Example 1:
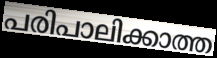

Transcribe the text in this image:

പരിപാലിക്കാത്ത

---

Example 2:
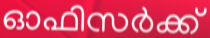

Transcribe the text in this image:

ഓഫിസർക്ക്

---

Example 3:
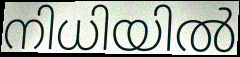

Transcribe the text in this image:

നിധിയിൽ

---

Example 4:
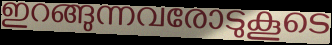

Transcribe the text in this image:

ഇറങ്ങുന്നവരോടുകൂടെ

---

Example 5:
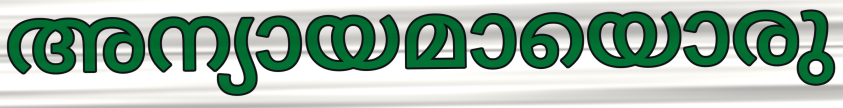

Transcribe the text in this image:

അന്യായമായൊരു